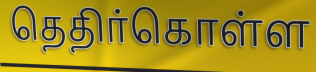
தெதிர்கொள்ள